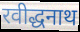
रवीद्धनाथ